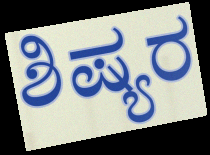
ಶಿಷ್ಯರ